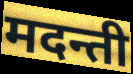
मदन्ती